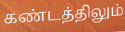
கண்டத்திலும்